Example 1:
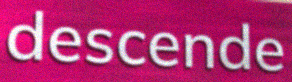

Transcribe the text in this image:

descende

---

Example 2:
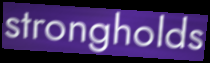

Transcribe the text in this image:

strongholds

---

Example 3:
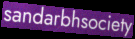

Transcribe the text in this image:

sandarbhsociety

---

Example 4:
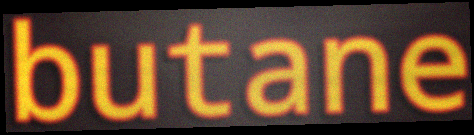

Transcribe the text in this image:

butane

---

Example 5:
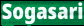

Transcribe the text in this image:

Sogasari